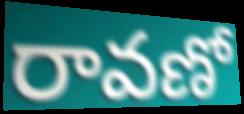
రావణో